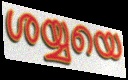
ശയ്യയെ